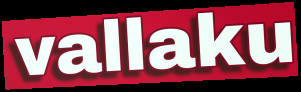
vallaku